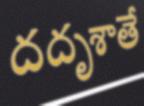
దదృశాతే